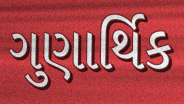
ગુણાર્થિક